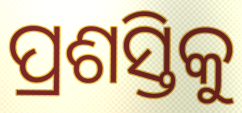
ପ୍ରଶସ୍ତିକୁ